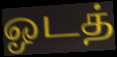
ஓடத்